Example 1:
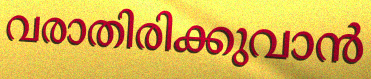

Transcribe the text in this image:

വരാതിരിക്കുവാൻ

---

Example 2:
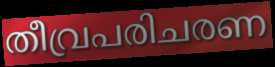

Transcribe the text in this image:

തീവ്രപരിചരണ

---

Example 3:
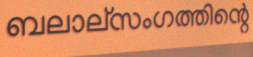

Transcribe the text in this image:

ബലാല്സംഗത്തിന്റെ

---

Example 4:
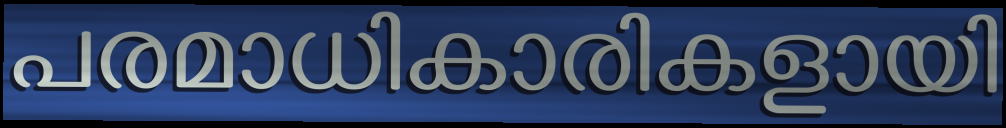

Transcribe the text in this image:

പരമാധികാരികളായി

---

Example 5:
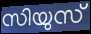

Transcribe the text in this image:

സിയുസ്